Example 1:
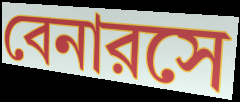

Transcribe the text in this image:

বেনারসে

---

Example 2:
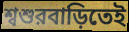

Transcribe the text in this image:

শ্বশুরবাড়িতেই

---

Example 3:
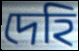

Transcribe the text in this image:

দেহি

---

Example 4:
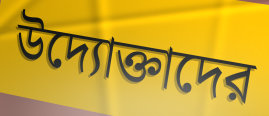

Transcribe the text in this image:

উদ্যোক্তাদের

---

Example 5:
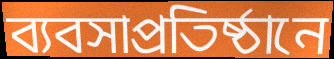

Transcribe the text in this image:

ব্যবসাপ্রতিষ্ঠানে